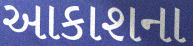
આકાશના